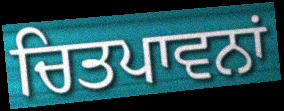
ਚਿਤਪਾਵਨਾਂ